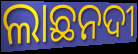
ଲାଛନଦୀ